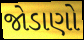
જોડાણો